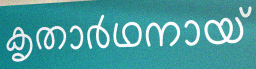
കൃതാർഥനായ്